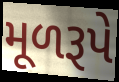
મૂળરૂપે